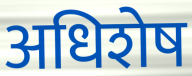
अधिशेष